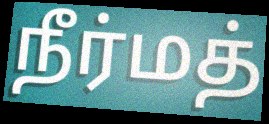
நீர்மத்